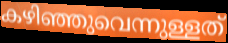
കഴിഞ്ഞുവെന്നുള്ളത്